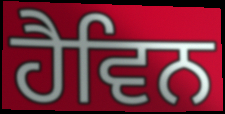
ਹੈਵਿਨ